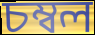
চম্বল